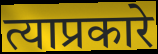
त्याप्रकारे